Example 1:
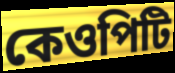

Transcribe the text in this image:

কেওপিটি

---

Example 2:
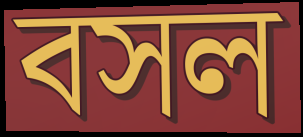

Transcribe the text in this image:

বসল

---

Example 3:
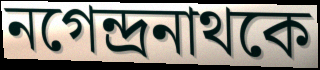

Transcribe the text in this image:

নগেন্দ্রনাথকে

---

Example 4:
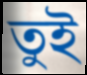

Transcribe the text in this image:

তুই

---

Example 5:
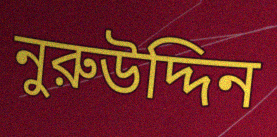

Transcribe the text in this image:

নুরুউদ্দিন